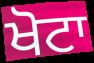
ਖੋਟਾ